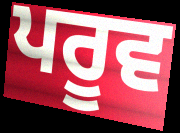
ਪਰੂਵ